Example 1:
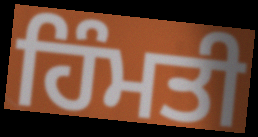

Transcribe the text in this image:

ਹਿੰਮਤੀ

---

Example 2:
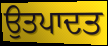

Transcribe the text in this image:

ਉਤਪਾਦਤ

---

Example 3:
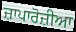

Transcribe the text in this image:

ਜ਼ਾਪਾਰੋਜ਼ੀਆ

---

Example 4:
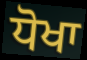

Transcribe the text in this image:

ਧੋਖਾ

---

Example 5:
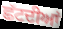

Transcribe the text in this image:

ਛੱਟਦੀਆਂ